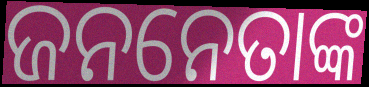
ଜନନେତାଙ୍କ